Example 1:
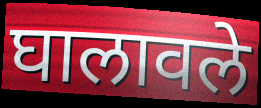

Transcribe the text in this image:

घालावले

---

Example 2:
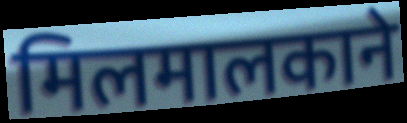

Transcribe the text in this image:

मिलमालकाने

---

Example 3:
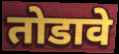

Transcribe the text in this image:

तोडावे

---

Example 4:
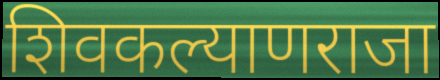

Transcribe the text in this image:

शिवकल्याणराजा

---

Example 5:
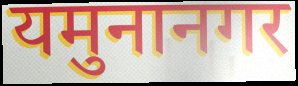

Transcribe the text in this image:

यमुनानगर